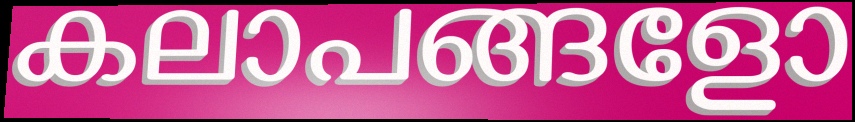
കലാപങ്ങളോ